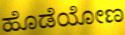
ಹೊಡೆಯೋಣ